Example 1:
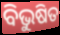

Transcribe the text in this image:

ବିଭୁଷିତ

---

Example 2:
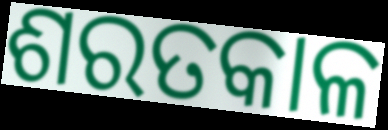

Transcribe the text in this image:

ଶରତକାଳ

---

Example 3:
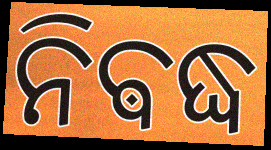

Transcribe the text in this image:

ନିଵଦ୍ଧ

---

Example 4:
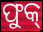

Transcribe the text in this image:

ଫୁକ୍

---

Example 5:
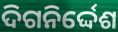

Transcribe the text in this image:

ଦିଗନିର୍ଦ୍ଦେଶ